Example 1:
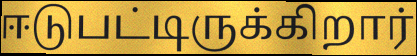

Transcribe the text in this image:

ஈடுபட்டிருக்கிறார்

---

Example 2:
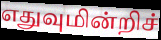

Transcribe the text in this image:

எதுவுமின்றிச்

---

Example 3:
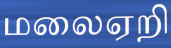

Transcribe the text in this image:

மலைஏறி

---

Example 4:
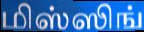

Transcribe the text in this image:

மிஸ்ஸிங்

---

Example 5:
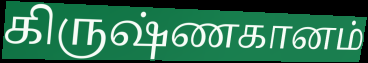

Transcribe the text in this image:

கிருஷ்ணகானம்